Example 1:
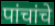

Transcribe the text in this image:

पांचांचे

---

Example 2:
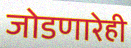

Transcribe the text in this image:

जोडणारेही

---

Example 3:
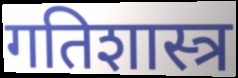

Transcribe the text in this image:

गतिशास्त्र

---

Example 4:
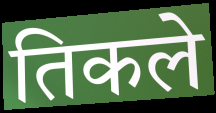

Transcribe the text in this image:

तिकले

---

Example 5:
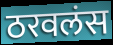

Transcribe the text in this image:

ठरवलंस